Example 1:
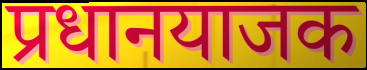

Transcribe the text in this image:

प्रधानयाजक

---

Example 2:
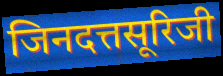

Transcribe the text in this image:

जिनदत्तसूरिजी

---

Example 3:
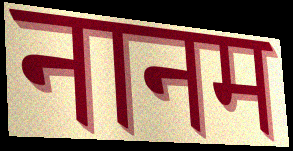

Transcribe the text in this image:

नानम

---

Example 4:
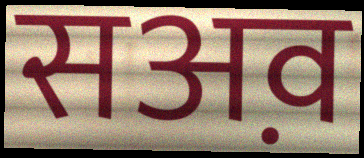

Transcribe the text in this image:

सअ़व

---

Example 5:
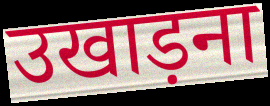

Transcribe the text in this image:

उखाड़ना